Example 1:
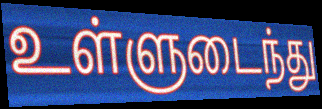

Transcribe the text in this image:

உள்ளுடைந்து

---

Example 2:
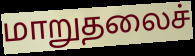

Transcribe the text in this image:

மாறுதலைச்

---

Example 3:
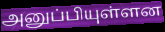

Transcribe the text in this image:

அனுப்பியுள்ளன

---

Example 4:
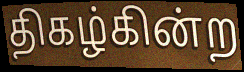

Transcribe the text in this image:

திகழ்கின்ற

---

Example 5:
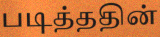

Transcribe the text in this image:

படித்ததின்